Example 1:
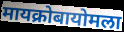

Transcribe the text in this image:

मायक्रोबायोमला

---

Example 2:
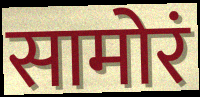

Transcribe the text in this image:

सामोरं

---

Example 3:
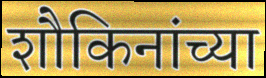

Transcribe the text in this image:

शौकिनांच्या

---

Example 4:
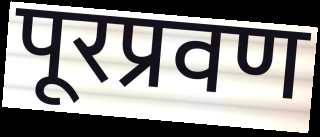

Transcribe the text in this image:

पूरप्रवण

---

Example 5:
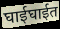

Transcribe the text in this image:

घाईघाईत